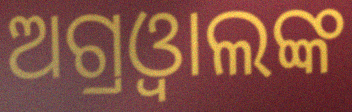
ଅଗ୍ରଓ୍ବାଲଙ୍କ